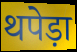
थपेड़ा